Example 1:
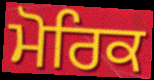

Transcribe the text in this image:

ਮੋਰਿਕ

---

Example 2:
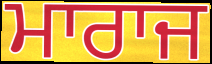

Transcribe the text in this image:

ਮਾਰਾਜ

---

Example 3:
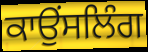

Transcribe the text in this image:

ਕਾਉੰਸਲਿੰਗ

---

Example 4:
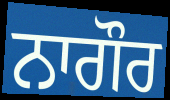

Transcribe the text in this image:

ਨਾਗੌਰ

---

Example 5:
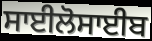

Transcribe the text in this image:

ਸਾਈਲੋਸਾਈਬ